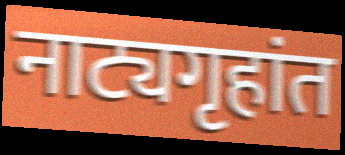
नाट्यगृहांत